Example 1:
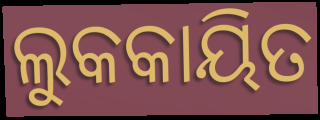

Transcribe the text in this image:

ଲୁକକାୟିତ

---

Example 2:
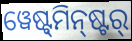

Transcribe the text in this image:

ୱେଷ୍ଟ୍‌ମିନ୍‌ଷ୍ଟର୍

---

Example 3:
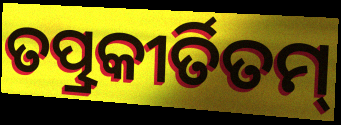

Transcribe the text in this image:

ତତ୍ପ୍ରକୀର୍ତିତମ୍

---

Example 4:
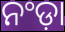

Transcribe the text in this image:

ନଂଡ଼ା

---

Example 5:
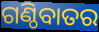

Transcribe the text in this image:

ଗଣ୍ଠିବାତର